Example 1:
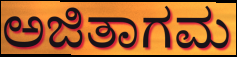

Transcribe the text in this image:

ಅಜಿತಾಗಮ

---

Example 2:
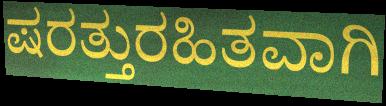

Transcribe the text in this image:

ಷರತ್ತುರಹಿತವಾಗಿ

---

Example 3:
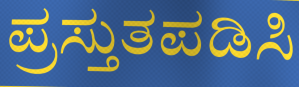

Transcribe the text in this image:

ಪ್ರಸ್ತುತಪಡಿಸಿ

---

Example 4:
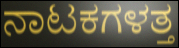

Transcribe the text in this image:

ನಾಟಕಗಳತ್ತ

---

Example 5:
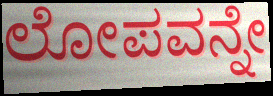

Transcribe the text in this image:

ಲೋಪವನ್ನೇ